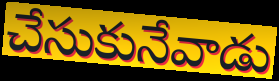
చేసుకునేవాడు